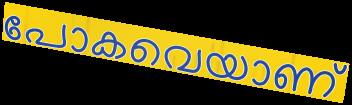
പോകവെയാണ്